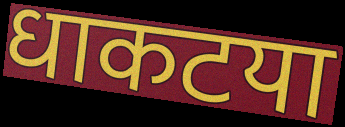
धाकटया